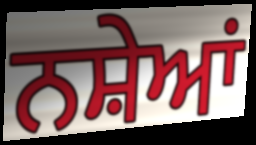
ਨਸ਼ੇਆਂ